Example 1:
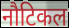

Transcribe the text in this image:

नौटिकल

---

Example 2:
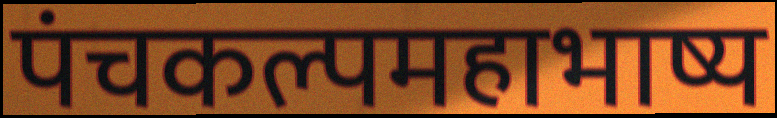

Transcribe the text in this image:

पंचकल्पमहाभाष्य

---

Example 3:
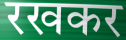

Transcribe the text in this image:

रखकर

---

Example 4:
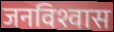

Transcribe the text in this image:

जनविश्वास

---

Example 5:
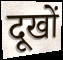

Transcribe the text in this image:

दूखों